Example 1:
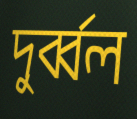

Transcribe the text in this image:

দুৰ্ব্বল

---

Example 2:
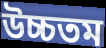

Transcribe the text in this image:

উচ্চতম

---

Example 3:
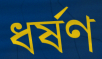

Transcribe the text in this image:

ধৰ্ষণ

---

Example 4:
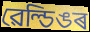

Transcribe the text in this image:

ৱেল্ডিঙৰ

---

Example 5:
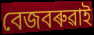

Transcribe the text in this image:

বেজবৰুৱাই